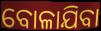
ବୋଳାଯିବା